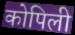
कोपिली